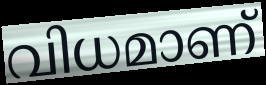
വിധമാണ്